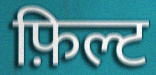
फ़िल्ट